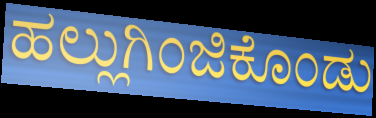
ಹಲ್ಲುಗಿಂಜಿಕೊಂಡು